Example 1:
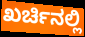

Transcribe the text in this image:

ಖರ್ಚಿನಲ್ಲಿ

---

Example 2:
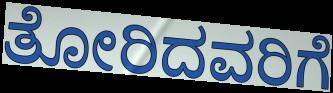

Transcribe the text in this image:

ತೋರಿದವರಿಗೆ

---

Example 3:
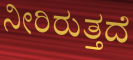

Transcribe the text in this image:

ನೀರಿರುತ್ತದೆ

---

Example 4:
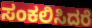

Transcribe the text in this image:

ಸಂಕಲಿಸಿದರೆ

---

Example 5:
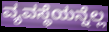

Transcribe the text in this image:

ವ್ಯವಸ್ಥೆಯನ್ನೆಲ್ಲ